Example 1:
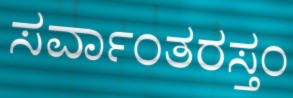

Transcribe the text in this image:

ಸರ್ವಾಂತರಸ್ತಂ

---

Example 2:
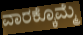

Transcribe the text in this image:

ವಾರಕ್ಕೊಮ್ಮೆ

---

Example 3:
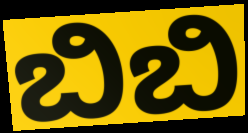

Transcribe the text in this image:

ಬಿಬಿ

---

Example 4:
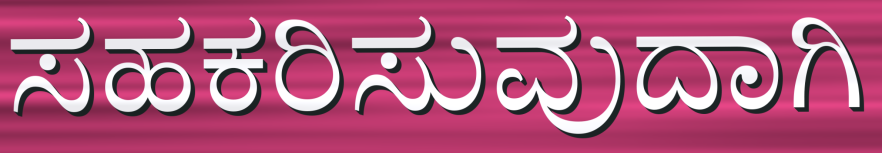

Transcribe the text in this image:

ಸಹಕರಿಸುವುದಾಗಿ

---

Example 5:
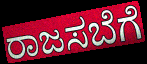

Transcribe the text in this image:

ರಾಜಸಬೆಗೆ